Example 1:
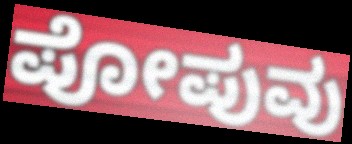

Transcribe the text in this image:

ಪೋಪುವು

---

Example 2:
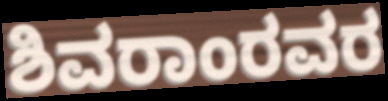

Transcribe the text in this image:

ಶಿವರಾಂರವರ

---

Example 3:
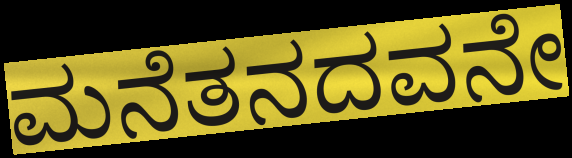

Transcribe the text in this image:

ಮನೆತನದವನೇ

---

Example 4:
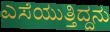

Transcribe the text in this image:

ಎಸೆಯುತ್ತಿದ್ದನು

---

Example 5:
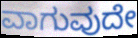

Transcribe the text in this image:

ವಾಗುವುದೇ